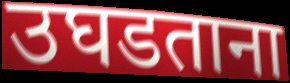
उघडताना